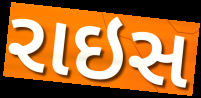
રાઇસ